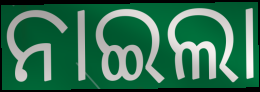
ନାଇଲା